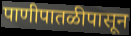
पाणीपातळीपासून